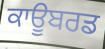
ਕਾਊਬਰਡ